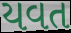
યવત